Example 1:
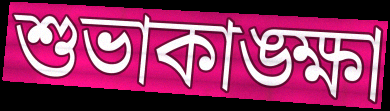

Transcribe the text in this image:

শুভাকাঙ্ক্ষা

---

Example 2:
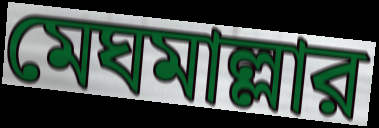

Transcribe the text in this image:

মেঘমাল্লার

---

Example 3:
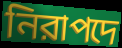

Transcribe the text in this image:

নিরাপদে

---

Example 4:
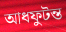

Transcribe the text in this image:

আধফুটন্ত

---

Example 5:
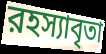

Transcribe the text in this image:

রহস্যাবৃতা